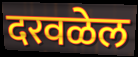
दरवळेल